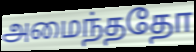
அமைந்ததோ